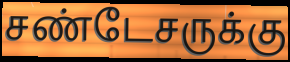
சண்டேசருக்கு